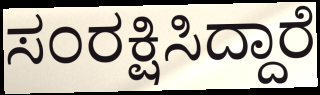
ಸಂರಕ್ಷಿಸಿದ್ದಾರೆ